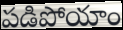
పడిపోయాం